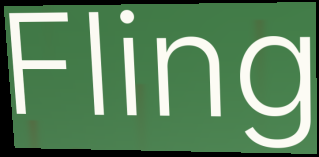
Fling